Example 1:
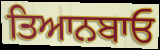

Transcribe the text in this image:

ਤਿਆਨਬਾਓ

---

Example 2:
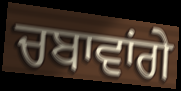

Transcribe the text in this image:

ਚਬਾਵਾਂਗੇ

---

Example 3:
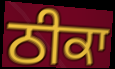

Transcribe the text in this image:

ਠੀਕਾ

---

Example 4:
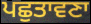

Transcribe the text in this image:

ਪਛੁਤਾਵਣਾ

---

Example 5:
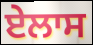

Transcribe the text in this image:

ਏਲਾਸ